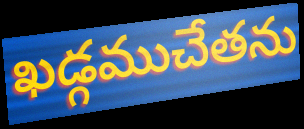
ఖడ్గముచేతను